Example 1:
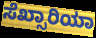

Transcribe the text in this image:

ಸೆಖ್ಸಾರಿಯಾ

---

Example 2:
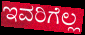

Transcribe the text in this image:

ಇವರಿಗೆಲ್ಲ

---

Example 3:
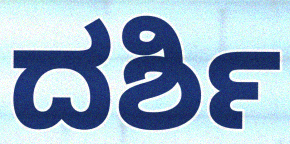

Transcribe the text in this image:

ದರ್ಶಿ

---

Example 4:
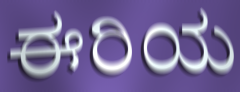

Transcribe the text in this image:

ಈರಿಯ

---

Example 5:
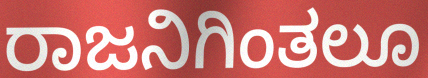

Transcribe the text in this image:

ರಾಜನಿಗಿಂತಲೂ